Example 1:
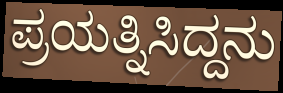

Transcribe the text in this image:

ಪ್ರಯತ್ನಿಸಿದ್ದನು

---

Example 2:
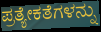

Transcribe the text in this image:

ಪ್ರತ್ಯೇಕತೆಗಳನ್ನು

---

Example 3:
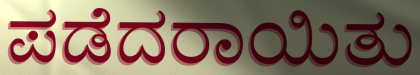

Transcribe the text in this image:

ಪಡೆದರಾಯಿತು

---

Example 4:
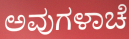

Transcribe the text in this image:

ಅವುಗಳಾಚೆ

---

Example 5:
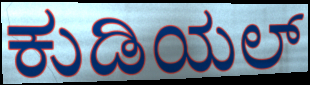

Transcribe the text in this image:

ಕುಡಿಯಲ್